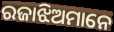
ରଜାଝିଅମାନେ